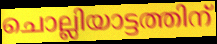
ചൊല്ലിയാട്ടത്തിന്